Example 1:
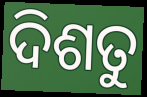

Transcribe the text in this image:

ଦିଶତୁ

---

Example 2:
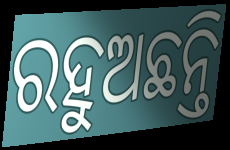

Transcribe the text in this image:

ରହୁଅଛନ୍ତି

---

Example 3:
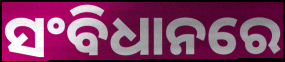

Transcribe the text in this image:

ସଂବିଧାନରେ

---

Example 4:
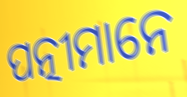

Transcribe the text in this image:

ପତ୍ନୀମାନେ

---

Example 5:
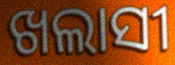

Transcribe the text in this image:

ଖଲାସୀ